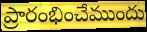
ప్రారంభించేముందు